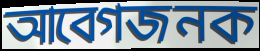
আবেগজনক